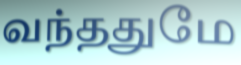
வந்ததுமே